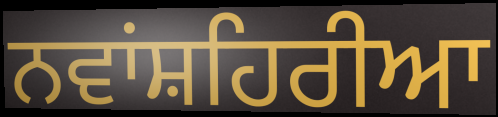
ਨਵਾਂਸ਼ਹਿਰੀਆ